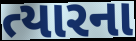
ત્યારના